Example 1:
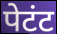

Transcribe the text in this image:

पेटंट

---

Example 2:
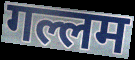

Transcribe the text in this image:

गल्लम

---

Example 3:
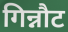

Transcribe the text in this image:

गिन्नौट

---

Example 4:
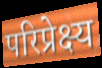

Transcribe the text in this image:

परिप्रेक्ष्य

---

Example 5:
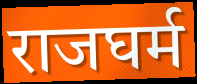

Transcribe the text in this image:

राजघर्म